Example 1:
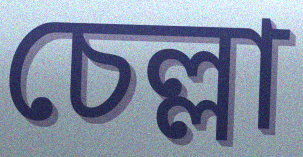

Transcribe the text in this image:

চেল্লা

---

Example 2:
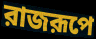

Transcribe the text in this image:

রাজরূপে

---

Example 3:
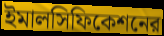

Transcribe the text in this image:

ইমালসিফিকেশনের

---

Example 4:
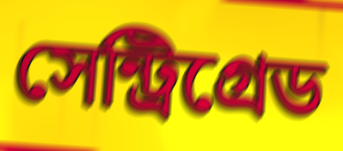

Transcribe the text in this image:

সেন্ট্রিগ্রেড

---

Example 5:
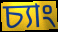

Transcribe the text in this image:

চ্যাং